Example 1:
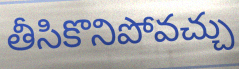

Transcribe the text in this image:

తీసికొనిపోవచ్చు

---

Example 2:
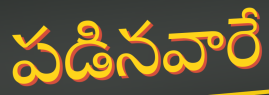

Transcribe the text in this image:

పడినవారే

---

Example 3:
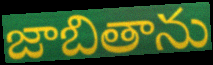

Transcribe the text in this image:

జాబితాను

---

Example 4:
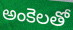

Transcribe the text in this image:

అంకెలతో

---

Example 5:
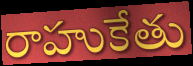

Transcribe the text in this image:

రాహుకేతు